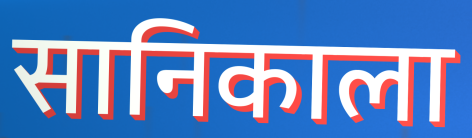
सानिकाला